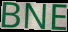
BNE